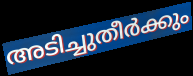
അടിച്ചുതീർക്കും